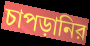
চাপড়ানির